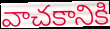
వాచకానికి